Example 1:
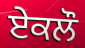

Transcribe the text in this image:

ਏਕਲੌ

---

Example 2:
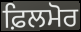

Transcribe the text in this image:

ਫ਼ਿਲਮੋਰ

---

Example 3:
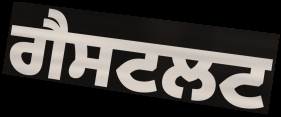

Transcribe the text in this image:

ਗੈਸਟਲਟ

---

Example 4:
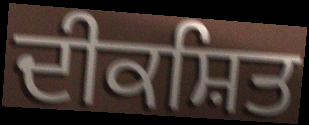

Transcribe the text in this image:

ਦੀਕਸ਼ਿਤ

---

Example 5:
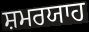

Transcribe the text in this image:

ਸ਼ਮਰਯਾਹ